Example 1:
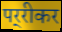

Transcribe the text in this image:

पर्रीकर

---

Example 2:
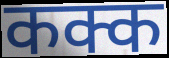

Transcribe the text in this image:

कक्क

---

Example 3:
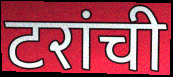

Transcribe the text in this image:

टरांची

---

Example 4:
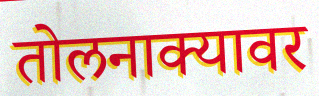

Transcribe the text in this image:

तोलनाक्यावर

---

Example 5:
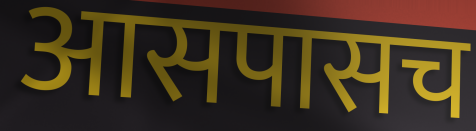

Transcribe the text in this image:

आसपासच